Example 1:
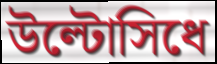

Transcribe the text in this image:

উল্টোসিধে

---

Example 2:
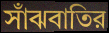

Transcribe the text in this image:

সাঁঝবাতির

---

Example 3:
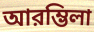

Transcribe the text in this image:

আরম্ভিলা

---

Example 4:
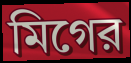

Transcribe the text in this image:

মিগের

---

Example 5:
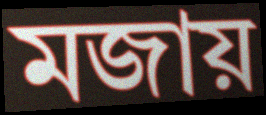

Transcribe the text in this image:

মজায়